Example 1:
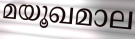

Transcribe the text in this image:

മയൂഖമാല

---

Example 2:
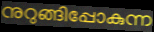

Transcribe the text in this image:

നുറുങ്ങിപ്പോകുന്ന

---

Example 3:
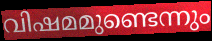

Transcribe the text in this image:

വിഷമമുണ്ടെന്നും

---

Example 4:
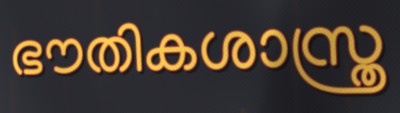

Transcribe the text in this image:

ഭൗതികശാസ്ത്ര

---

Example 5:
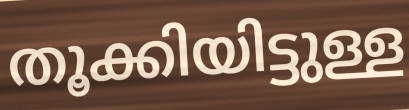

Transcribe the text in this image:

തൂക്കിയിട്ടുള്ള